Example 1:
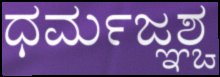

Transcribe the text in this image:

ಧರ್ಮಜ್ಞಶ್ಚ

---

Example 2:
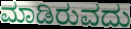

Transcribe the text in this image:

ಮಾಡಿರುವದು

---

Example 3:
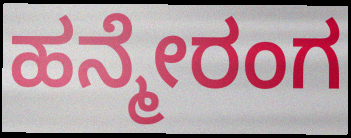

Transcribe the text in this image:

ಹನ್ಮೇರಂಗ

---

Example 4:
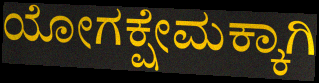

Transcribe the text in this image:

ಯೋಗಕ್ಷೇಮಕ್ಕಾಗಿ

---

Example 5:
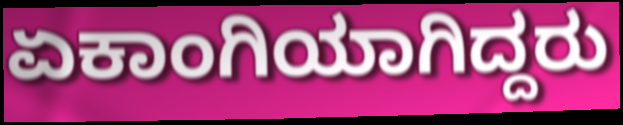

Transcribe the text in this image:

ಏಕಾಂಗಿಯಾಗಿದ್ದರು